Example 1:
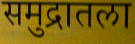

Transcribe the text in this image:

समुद्रातला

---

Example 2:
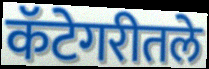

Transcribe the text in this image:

कॅटेगरीतले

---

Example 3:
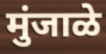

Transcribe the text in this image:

मुंजाळे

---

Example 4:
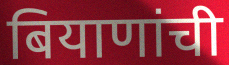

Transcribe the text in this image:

बियाणांची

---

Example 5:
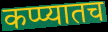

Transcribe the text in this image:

कप्प्यातच